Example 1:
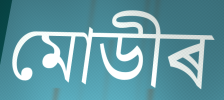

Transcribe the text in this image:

মোডীৰ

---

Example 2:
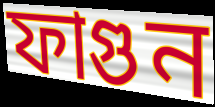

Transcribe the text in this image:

ফাগুন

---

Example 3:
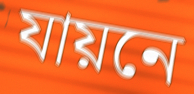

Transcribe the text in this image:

যায়নে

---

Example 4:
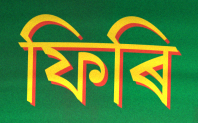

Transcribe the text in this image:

ফিৰি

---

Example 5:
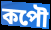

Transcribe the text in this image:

কপৌ